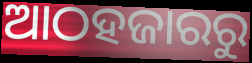
ଆଠହଜାରରୁ